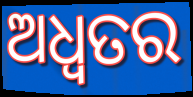
ଅଧ୍ଵତର